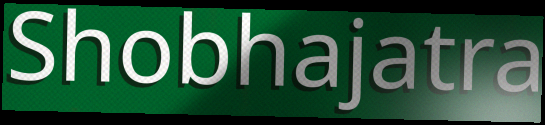
Shobhajatra